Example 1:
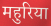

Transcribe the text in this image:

महुरिया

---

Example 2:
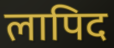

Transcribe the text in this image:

लापिद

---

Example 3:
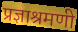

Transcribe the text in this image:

प्रज्ञाश्रमणी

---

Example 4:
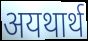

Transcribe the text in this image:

अयथार्थ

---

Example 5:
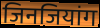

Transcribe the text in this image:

जिनजियांग